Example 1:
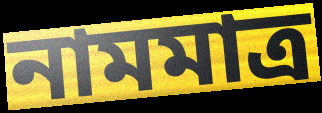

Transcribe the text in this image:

নামমাত্ৰ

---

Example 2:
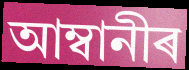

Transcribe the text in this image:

আম্বানীৰ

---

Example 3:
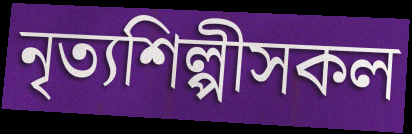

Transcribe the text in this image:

নৃত্যশিল্পীসকল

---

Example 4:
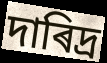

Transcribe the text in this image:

দাৰিদ্ৰ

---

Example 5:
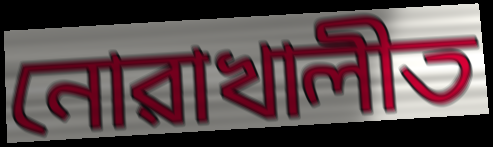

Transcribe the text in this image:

নোৱাখালীত